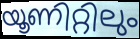
യൂണിറ്റിലും